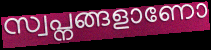
സ്വപ്നങ്ങളാണോ